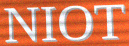
NIOT